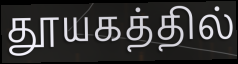
தூயகத்தில்